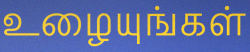
உழையுங்கள்